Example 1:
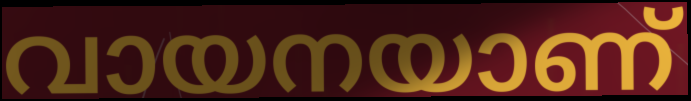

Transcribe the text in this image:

വായനയാണ്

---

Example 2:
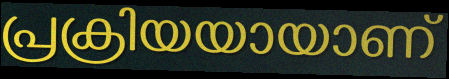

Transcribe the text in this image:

പ്രക്രിയയായാണ്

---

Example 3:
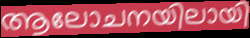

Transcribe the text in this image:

ആലോചനയിലായി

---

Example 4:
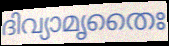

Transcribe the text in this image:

ദിവ്യാമൃതൈഃ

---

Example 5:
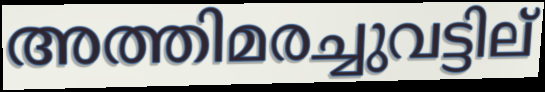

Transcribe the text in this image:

അത്തിമരച്ചുവട്ടില്